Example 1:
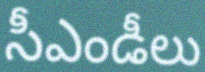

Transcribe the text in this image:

సీఎండీలు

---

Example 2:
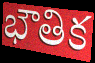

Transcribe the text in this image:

భౌతిక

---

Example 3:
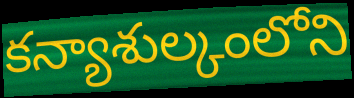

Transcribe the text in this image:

కన్యాశుల్కంలోని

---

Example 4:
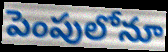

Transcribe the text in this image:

పెంపులోనూ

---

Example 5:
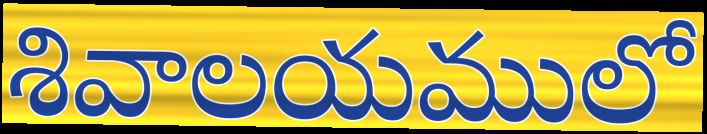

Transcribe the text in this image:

శివాలయములో